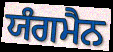
ਯੰਗਮੈਨ